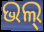
ଭଲ୍